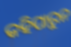
କହିପାରୁନ